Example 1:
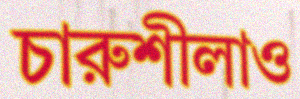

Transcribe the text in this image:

চারুশীলাও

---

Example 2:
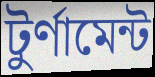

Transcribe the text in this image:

টুর্ণামেন্ট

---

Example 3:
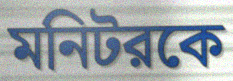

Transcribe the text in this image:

মনিটরকে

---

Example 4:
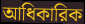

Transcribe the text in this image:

আধিকারিক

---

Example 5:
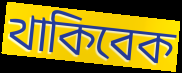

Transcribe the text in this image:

থাকিবেক